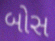
બોસ